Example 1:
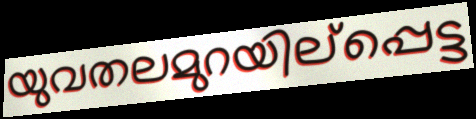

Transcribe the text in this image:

യുവതലമുറയില്പ്പെട്ട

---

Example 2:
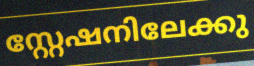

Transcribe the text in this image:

സ്റ്റേഷനിലേക്കു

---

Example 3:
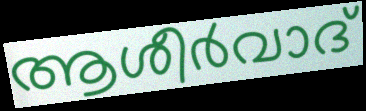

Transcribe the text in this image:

ആശീർവാദ്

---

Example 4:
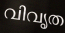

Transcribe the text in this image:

വിവൃത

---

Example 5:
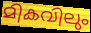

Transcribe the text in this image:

മികവിലും